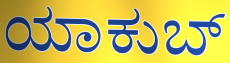
ಯಾಕುಬ್